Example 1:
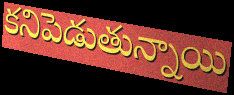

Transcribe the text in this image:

కనిపెడుతున్నాయి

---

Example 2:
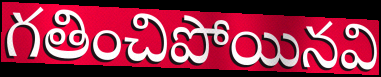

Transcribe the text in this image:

గతించిపోయినవి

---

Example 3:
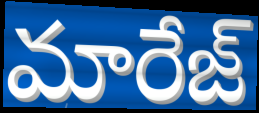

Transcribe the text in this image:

మారేజ్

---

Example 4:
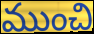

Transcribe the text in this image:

ముంచి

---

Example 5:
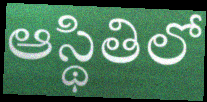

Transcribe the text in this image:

ఆస్థితిలో